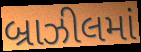
બ્રાઝીલમાં